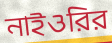
নাইওরির